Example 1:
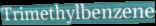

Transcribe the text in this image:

Trimethylbenzene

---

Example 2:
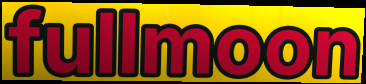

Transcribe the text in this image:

fullmoon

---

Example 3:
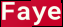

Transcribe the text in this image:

Faye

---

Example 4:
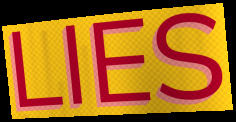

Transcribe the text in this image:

LIES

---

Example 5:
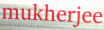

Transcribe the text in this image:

mukherjee